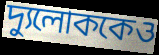
দ্যুলোককেও